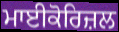
ਮਾਈਕੋਰਿਜ਼ਲ